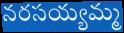
నరసయ్యమ్మ